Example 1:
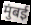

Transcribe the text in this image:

मुंबई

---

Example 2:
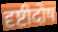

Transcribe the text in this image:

दृष्टीदोष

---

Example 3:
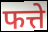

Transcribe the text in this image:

फत्ते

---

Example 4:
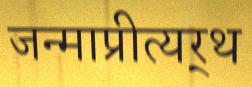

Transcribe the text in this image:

जन्माप्रीत्यर्थ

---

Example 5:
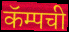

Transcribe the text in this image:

कॅम्पची